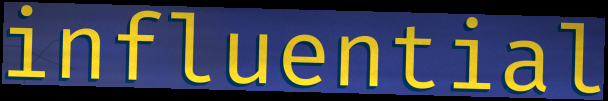
influential